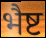
भैष्ट